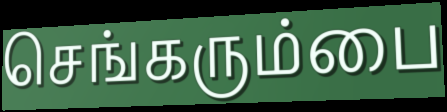
செங்கரும்பை